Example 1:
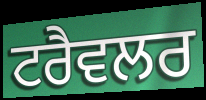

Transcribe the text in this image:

ਟਰੈਵਲਰ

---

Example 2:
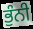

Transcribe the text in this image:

ਭੁੰਨੀ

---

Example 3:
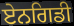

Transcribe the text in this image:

ਏਨਗਿਡੀ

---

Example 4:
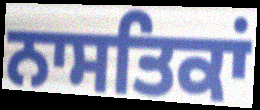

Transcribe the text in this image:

ਨਾਸਤਿਕਾਂ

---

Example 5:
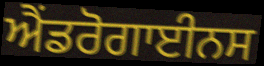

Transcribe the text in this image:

ਐਂਡਰੋਗਾਈਨਸ